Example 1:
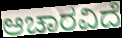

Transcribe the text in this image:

ಆಚಾರವಿದೆ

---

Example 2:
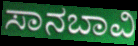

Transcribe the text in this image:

ಸಾನಬಾವಿ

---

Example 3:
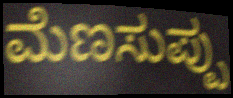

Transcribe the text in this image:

ಮೆಣಸುಪ್ಪು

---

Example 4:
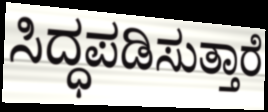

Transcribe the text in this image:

ಸಿದ್ಧಪಡಿಸುತ್ತಾರೆ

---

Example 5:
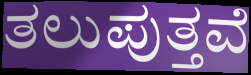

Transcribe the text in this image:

ತಲುಪುತ್ತವೆ